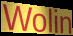
Wolin